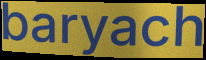
baryach